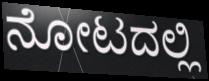
ನೋಟದಲ್ಲಿ